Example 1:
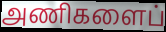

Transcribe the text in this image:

அணிகளைப்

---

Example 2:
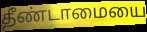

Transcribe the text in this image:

தீண்டாமையை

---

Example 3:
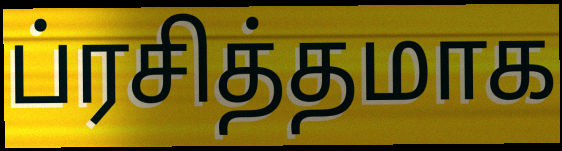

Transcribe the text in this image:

ப்ரசித்தமாக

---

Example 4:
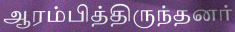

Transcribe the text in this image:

ஆரம்பித்திருந்தனர்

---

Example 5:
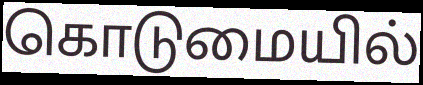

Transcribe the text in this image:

கொடுமையில்